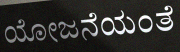
ಯೋಜನೆಯಂತೆ